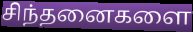
சிந்தனைகளை